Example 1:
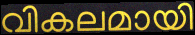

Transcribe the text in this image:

വികലമായി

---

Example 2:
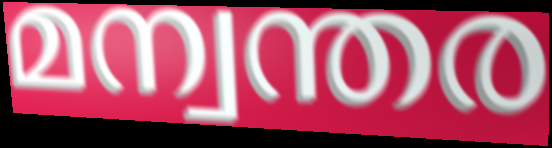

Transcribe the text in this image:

മന്വന്തര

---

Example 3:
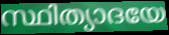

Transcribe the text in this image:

സ്ഥിത്യാദയേ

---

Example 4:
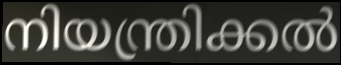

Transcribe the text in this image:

നിയന്ത്രിക്കൽ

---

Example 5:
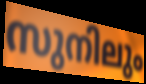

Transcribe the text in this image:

സുനിലും